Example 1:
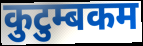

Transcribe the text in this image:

कुटुम्बकम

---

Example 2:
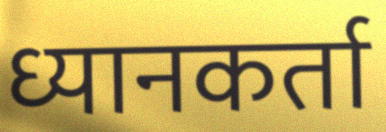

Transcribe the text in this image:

ध्यानकर्ता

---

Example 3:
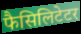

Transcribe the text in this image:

फैसिलिटेटर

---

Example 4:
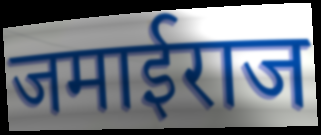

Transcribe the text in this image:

जमाईराज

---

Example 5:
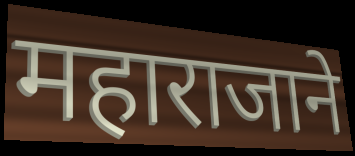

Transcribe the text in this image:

महाराजाने